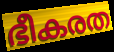
ഭീകരത